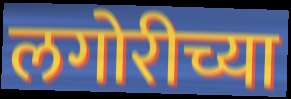
लगोरीच्या